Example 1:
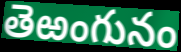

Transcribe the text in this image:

తెఱంగునం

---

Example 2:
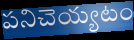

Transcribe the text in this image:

పనిచెయ్యటం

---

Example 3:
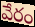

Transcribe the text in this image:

వేరం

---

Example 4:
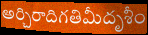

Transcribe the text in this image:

అర్చిరాదిగతిమీదృశీం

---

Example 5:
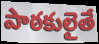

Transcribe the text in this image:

పాఠకులైతే